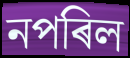
নপৰিল